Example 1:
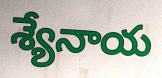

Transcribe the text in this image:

శ్యేనాయ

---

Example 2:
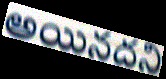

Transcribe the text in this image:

అయినదని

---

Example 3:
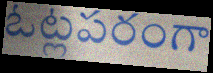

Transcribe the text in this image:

ఓట్లపరంగా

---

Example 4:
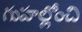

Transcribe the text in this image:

గుహల్లోంచి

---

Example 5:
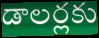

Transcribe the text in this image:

డాలర్లకు